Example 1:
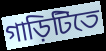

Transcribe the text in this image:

গাড়িটিতে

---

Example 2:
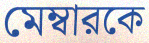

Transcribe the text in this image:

মেম্বারকে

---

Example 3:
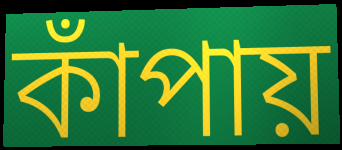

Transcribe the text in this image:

কাঁপায়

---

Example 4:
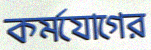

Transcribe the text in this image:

কর্মযোগের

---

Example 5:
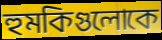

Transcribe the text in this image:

হুমকিগুলোকে